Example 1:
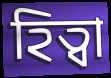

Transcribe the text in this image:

হিত্বা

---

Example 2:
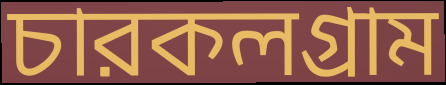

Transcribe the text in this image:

চারকলগ্রাম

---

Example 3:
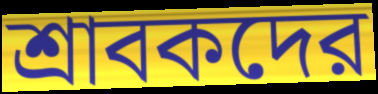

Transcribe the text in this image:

শ্রাবকদের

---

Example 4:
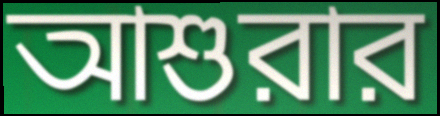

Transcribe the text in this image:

আশুরার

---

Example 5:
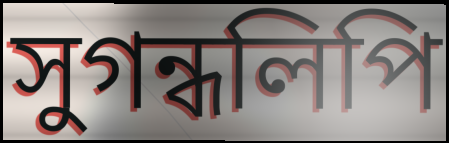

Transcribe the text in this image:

সুগন্ধলিপি